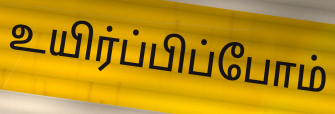
உயிர்ப்பிப்போம்